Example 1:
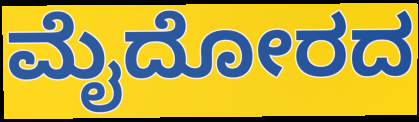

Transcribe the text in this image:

ಮೈದೋರದ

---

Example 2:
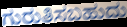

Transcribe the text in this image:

ಗುರುತಿಸಬಹುದು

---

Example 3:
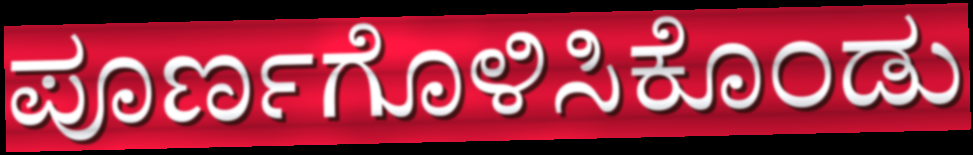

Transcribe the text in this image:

ಪೂರ್ಣಗೊಳಿಸಿಕೊಂಡು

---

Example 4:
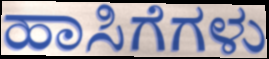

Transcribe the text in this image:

ಹಾಸಿಗೆಗಳು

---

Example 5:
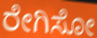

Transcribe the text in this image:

ರೇಗಿಸೋ